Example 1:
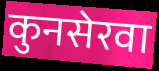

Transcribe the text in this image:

कुनसेरवा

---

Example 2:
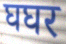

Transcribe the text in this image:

घघर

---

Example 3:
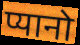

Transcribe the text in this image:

प्यानो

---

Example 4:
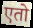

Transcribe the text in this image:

एतो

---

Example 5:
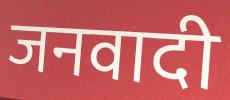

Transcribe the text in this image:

जनवादी